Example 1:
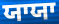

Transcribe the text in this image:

ਯਾਯਾ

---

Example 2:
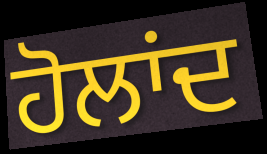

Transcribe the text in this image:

ਹੋਲਾਂਦ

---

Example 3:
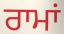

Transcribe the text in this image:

ਰਾਮਾਂ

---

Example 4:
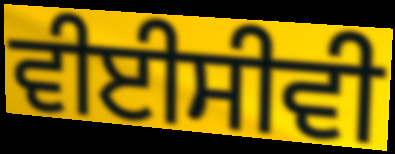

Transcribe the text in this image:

ਵੀਈਸੀਵੀ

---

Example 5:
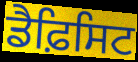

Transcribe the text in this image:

ਡੈਫ਼ਿਸਿਟ